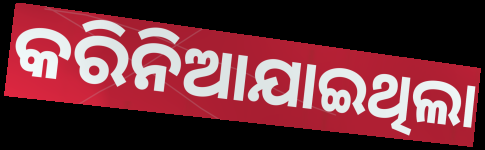
କରିନିଆଯାଇଥିଲା